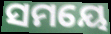
ସମୟେ